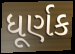
ધૂર્ણક